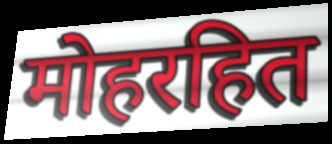
मोहरहित